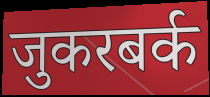
जुकरबर्क